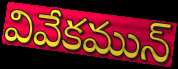
వివేకమున్